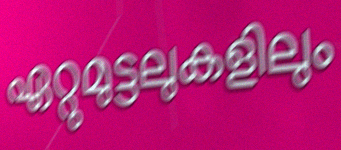
ഏറ്റുമുട്ടലുകളിലും